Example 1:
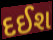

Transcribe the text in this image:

દઈશ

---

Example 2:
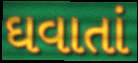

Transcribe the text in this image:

ઘવાતાં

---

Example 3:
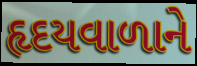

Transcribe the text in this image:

હૃદયવાળાને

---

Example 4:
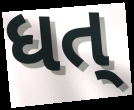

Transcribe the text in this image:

ધત્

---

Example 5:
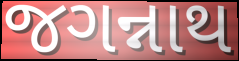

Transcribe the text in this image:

જગન્નાથ